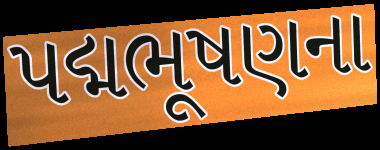
પદ્મભૂષણના